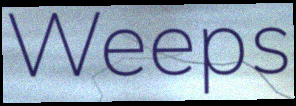
Weeps